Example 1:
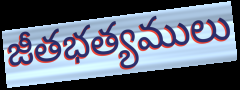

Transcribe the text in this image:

జీతభత్యములు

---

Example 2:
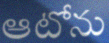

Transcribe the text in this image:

ఆటోను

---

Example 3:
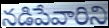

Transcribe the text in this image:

నడిపేవారిని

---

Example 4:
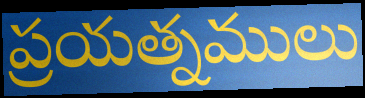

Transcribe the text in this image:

ప్రయత్నములు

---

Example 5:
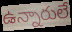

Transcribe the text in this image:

ఉన్నారులే